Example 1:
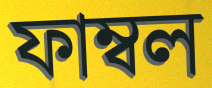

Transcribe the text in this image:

ফাম্বল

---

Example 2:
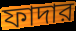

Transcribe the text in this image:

ফাদার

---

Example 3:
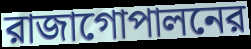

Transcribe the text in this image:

রাজাগোপালনের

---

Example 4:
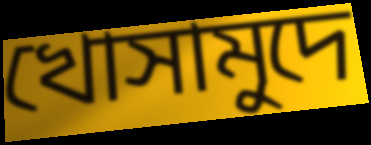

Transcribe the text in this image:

খোসামুদে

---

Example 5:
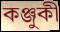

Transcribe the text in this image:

কঞ্জুকী